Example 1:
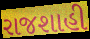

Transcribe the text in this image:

રાજશાહી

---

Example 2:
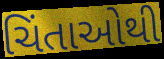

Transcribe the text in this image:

ચિંતાઓથી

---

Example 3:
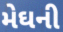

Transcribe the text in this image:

મેઘની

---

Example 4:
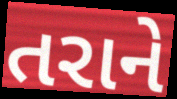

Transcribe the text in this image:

તરાને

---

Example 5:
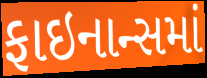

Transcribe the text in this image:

ફાઇનાન્સમાં